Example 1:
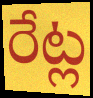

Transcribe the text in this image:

రేట్ల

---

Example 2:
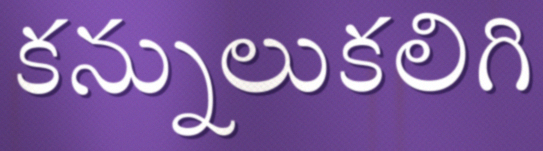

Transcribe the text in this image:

కన్నులుకలిగి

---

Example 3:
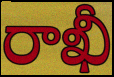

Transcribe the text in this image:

రాఖీ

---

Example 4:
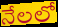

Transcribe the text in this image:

నేలలో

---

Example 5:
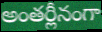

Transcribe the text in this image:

అంతర్లీనంగా